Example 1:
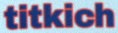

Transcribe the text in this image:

titkich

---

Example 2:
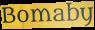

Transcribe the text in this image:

Bomaby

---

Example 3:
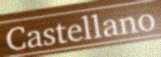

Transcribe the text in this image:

Castellano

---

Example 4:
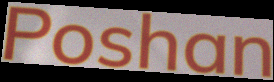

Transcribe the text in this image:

Poshan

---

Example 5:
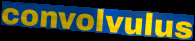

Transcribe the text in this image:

convolvulus